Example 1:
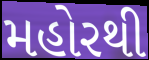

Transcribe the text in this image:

મહોરથી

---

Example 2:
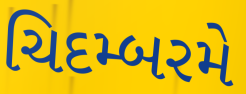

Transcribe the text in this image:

ચિદમ્બરમે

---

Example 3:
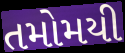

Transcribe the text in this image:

તમોમયી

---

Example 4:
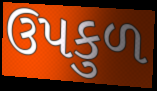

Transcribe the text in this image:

ઉપકુળ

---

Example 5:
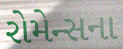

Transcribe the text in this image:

રોમેન્સના